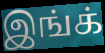
இங்க்